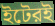
ইটেরই